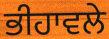
ਭੀਹਾਵਲੇ